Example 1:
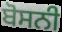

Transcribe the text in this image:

ਬੋਸਨੀ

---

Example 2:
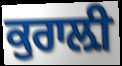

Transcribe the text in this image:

ਕੁਰਾਲ਼ੀ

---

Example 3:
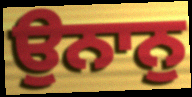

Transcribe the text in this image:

ਉਨਾਨੁ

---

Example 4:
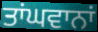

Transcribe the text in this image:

ਤਾਂਘਵਾਨਾਂ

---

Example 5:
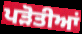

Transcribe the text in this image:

ਪੜੋਤੀਆਂ